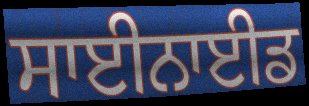
ਸਾਈਨਾਈਡ